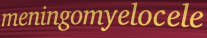
meningomyelocele